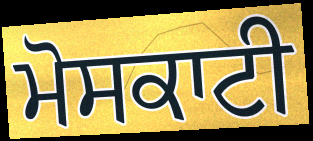
ਮੋਸਕਾਟੀ